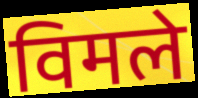
विमले